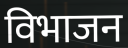
विभाजन